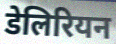
डेलिरियन